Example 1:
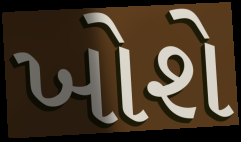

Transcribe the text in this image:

ખોશે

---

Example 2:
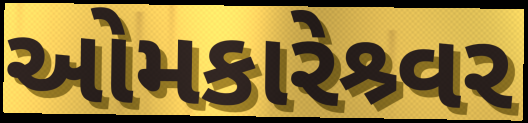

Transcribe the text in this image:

ઓમકારેશ્ર્વર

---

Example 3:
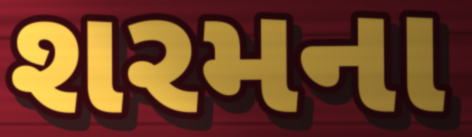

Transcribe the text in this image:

શરમના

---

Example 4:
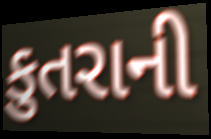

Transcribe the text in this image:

કુતરાની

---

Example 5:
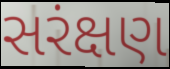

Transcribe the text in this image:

સરંક્ષણ